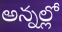
అన్నల్లో